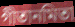
গীতানমিতা